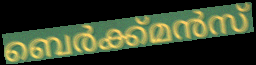
ബെർക്ക്മൻസ്